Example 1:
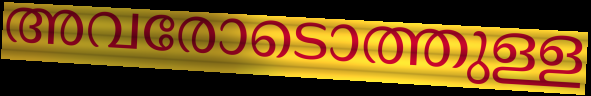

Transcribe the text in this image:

അവരോടൊത്തുള്ള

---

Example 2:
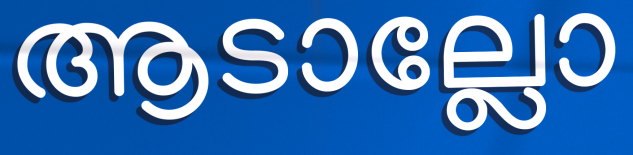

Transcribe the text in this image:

ആടാല്ലോ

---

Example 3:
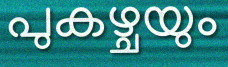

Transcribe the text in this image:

പുകഴ്ചയും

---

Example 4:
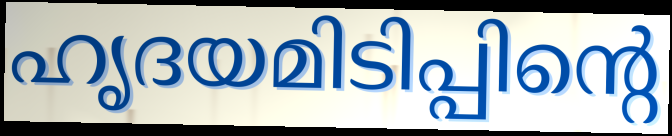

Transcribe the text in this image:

ഹൃദയമിടിപ്പിന്റെ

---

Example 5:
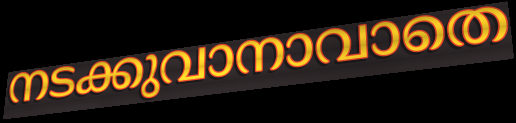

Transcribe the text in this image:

നടക്കുവാനാവാതെ